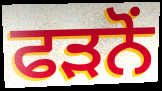
ਫੜਨੋਂ